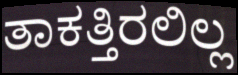
ತಾಕತ್ತಿರಲಿಲ್ಲ